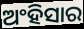
ଅଂହିସାର